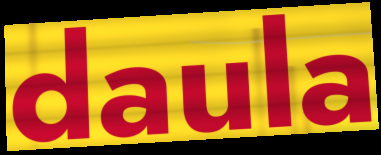
daula